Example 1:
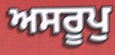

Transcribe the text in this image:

ਅਸਰੂਪੁ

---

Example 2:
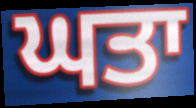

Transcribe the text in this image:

ਘਤਾ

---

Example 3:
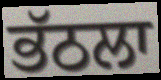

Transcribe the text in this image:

ਭੱਠਲਾ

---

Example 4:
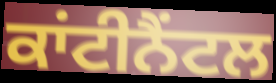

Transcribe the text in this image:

ਕਾਂਟੀਨੈਂਟਲ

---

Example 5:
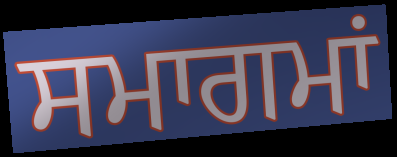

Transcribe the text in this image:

ਸਮਾਗਮਾਂ